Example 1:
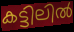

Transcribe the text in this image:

കട്ടിലിൽ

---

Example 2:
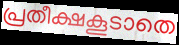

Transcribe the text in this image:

പ്രതീക്ഷകൂടാതെ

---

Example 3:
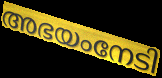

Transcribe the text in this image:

അഭയംനേടി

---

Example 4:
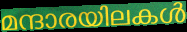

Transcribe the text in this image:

മന്ദാരയിലകൾ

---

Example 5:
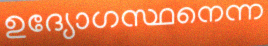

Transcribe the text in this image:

ഉദ്യോഗസ്ഥനെന്ന